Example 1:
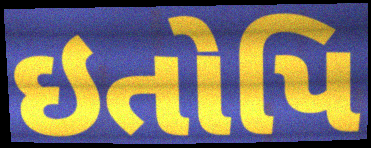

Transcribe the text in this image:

ઇતોપિ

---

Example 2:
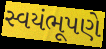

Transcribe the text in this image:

સ્વયંભૂપણે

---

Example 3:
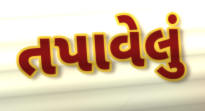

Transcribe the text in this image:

તપાવેલું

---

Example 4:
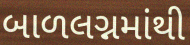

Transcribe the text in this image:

બાળલગ્નમાંથી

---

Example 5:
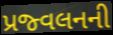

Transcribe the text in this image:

પ્રજ્વલનની